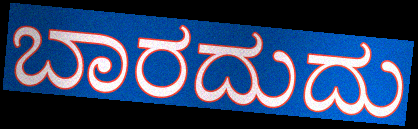
ಬಾರದುದು